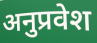
अनुप्रवेश